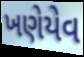
ખણેયેવ